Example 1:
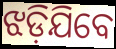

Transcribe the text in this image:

ଝଡ଼ିଯିବେ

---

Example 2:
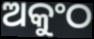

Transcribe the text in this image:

ଅକୁଂଠ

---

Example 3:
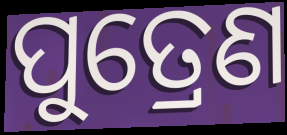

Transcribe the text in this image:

ପୁତ୍ରେଣ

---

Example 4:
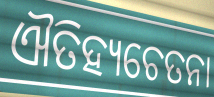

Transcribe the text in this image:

ଐତିହ୍ୟଚେତନା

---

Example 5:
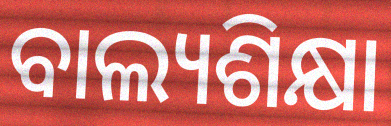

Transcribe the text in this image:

ବାଲ୍ୟଶିକ୍ଷା